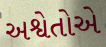
અશ્વેતોએ